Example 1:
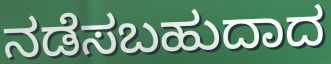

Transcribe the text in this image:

ನಡೆಸಬಹುದಾದ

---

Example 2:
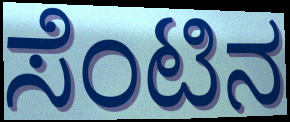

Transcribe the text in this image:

ಸೆಂಟಿನ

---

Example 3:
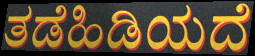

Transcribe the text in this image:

ತಡೆಹಿಡಿಯದೆ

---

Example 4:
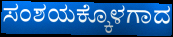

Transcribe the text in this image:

ಸಂಶಯಕ್ಕೊಳಗಾದ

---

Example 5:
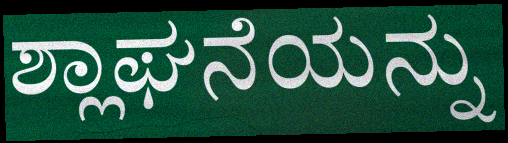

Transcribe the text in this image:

ಶ್ಲಾಘನೆಯನ್ನು